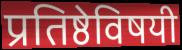
प्रतिष्ठेविषयी